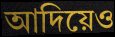
আদিয়েও